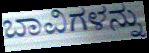
ಬಾವಿಗಳನ್ನು